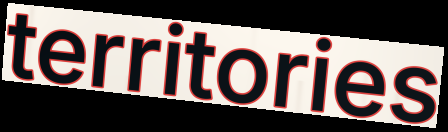
territories